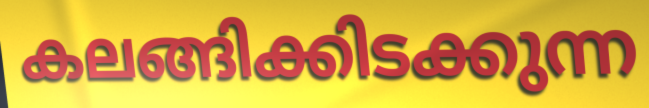
കലങ്ങിക്കിടക്കുന്ന